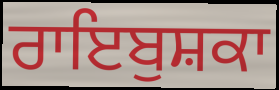
ਰਾਇਬੁਸ਼ਕਾ